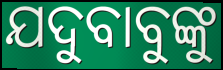
ଯଦୁବାବୁଙ୍କୁ